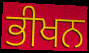
ਭੀਖਨ